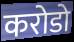
करोडो